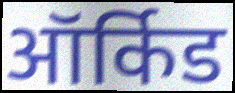
ऑर्किड